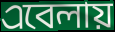
এবেলায়